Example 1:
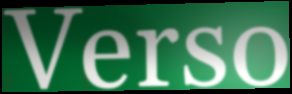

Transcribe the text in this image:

Verso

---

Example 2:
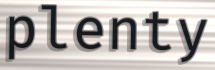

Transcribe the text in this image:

plenty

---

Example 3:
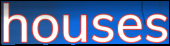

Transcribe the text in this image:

houses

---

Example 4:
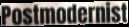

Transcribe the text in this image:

Postmodernist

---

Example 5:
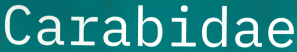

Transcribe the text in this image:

Carabidae